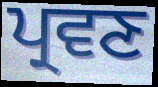
ਪ੍ਰਵਣ